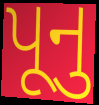
પૂનુ